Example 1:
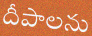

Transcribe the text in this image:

దీపాలను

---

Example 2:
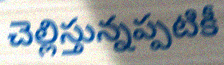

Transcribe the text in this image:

చెల్లిస్తున్నప్పటికీ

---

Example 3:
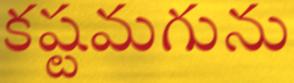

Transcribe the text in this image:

కష్టమగును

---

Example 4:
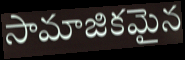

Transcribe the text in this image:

సామాజికమైన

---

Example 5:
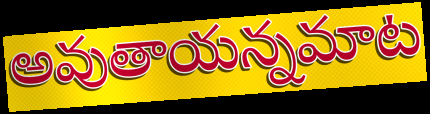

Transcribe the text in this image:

అవుతాయన్నమాట